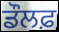
ਡੌਲਫ਼